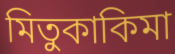
মিতুকাকিমা